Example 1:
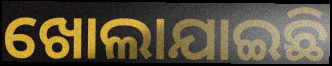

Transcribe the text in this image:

ଖୋଲାଯାଇଛି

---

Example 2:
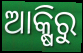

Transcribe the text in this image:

ଆକ୍ଷିରୁ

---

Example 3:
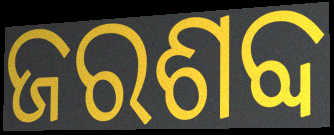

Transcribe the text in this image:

ଜରଶବ୍ଦ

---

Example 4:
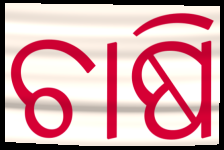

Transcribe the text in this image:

ଚାଷି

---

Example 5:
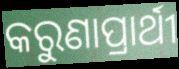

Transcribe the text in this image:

କରୁଣାପ୍ରାର୍ଥୀ